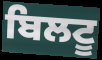
ਬਿਲਟੂ